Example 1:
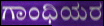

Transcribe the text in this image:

ಗಾಂಧಿಯರ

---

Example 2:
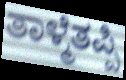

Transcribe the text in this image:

ತಾಳ್ಮೆತಪ್ಪಿ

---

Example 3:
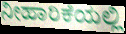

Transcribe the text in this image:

ನೀಹಾರಿಕೆಯಲ್ಲಿ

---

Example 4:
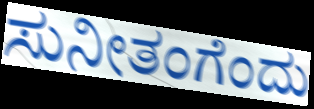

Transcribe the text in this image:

ಸುನೀತಂಗೆಂದು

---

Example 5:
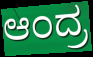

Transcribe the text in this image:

ಆಂದ್ರ